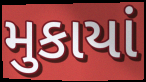
મુકાયાં